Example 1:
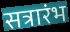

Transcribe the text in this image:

सत्रारंभ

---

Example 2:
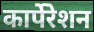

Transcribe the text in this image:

कार्पेरेशन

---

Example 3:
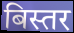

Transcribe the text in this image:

बिस्‍तर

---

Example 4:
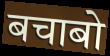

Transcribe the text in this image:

बचाबो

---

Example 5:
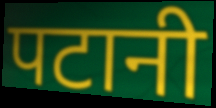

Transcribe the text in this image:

पटानी